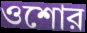
ওশোর